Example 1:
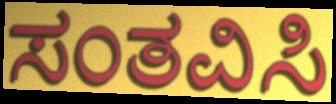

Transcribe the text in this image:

ಸಂತವಿಸಿ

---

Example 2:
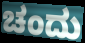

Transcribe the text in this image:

ಚಂದು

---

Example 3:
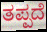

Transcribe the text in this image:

ತಪ್ಪದೆ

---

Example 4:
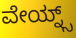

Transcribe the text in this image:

ವೇಯ್ನ್ಸ್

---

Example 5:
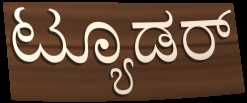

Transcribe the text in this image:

ಟ್ಯೂಡರ್